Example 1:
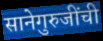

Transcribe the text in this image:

सानेगुरुजींची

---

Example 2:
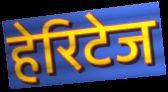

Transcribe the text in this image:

हेरिटेज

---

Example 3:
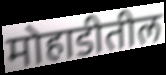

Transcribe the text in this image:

मोहाडीतील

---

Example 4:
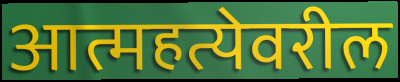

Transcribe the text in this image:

आत्महत्येवरील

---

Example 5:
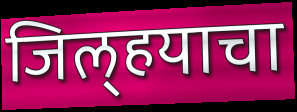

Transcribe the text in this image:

जिल्हयाचा